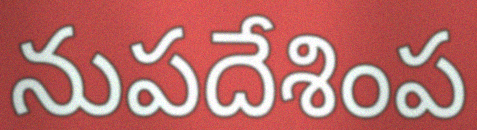
నుపదేశింప